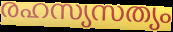
രഹസ്യസത്യം